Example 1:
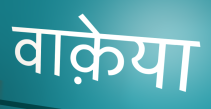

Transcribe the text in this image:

वाक़ेया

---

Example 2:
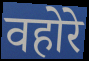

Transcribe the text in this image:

वहोरे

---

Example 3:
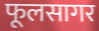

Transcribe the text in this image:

फूलसागर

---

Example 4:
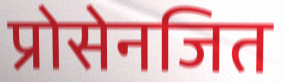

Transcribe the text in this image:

प्रोसेनजित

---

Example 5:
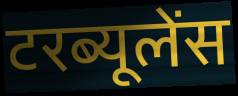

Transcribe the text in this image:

टरब्यूलेंस